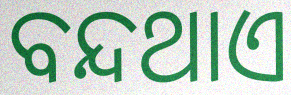
ବନ୍ଦଥାଏ